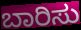
ಬಾರಿಸು